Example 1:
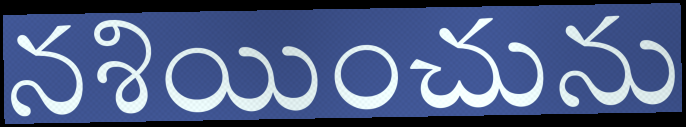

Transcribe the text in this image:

నశియించును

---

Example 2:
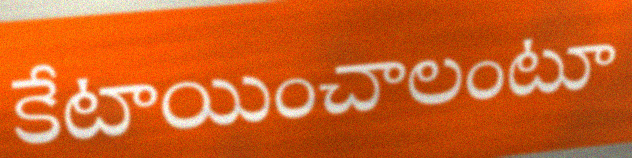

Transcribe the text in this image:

కేటాయించాలంటూ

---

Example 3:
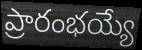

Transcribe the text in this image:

ప్రారంభయ్యే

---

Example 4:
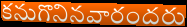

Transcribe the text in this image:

కనుగొనినవారందరు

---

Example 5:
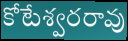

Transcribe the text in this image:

కోటేశ్వరరావు